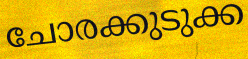
ചോരക്കുടുക്ക